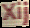
Xij